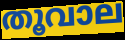
തൂവാല